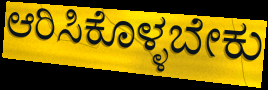
ಆರಿಸಿಕೊಳ್ಳಬೇಕು